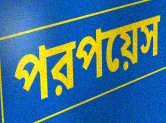
পরপয়েস